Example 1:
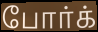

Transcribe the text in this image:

போர்க்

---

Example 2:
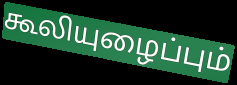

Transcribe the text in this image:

கூலியுழைப்பும்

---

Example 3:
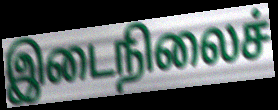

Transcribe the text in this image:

இடைநிலைச்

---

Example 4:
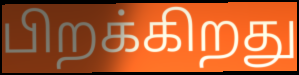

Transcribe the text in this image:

பிறக்கிறது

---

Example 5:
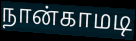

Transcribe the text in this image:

நான்காமடி